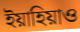
ইয়াহিয়াও